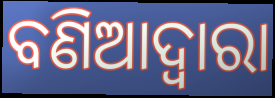
ବଣିଆଦ୍ୱାରା